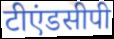
टीएंडसीपी